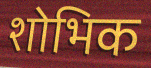
शोभिक